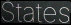
States